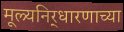
मूल्यनिर्धारणाच्या